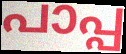
പാപ്പ